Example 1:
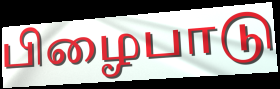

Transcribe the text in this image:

பிழைபாடு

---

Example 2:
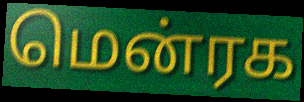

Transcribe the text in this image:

மென்ரக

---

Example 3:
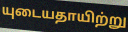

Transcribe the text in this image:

யுடையதாயிற்று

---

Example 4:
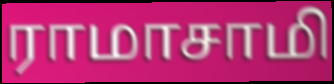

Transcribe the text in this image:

ராமாசாமி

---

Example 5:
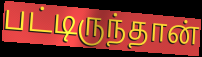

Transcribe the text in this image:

பட்டிருந்தான்